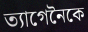
ত্যাগেনৈকে